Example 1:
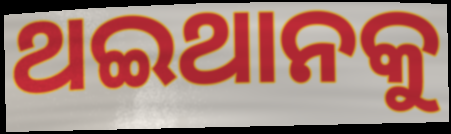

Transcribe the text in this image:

ଥଇଥାନକୁ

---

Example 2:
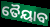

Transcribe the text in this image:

ତୈୟାବ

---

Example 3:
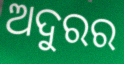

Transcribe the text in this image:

ଅଦୁରର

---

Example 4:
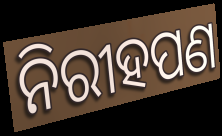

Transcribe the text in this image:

ନିରୀହପଣ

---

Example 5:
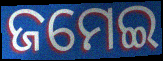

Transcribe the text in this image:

ଜମେଇ